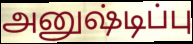
அனுஷ்டிப்பு